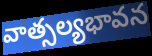
వాత్సల్యభావన